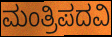
ಮಂತ್ರಿಪದವಿ